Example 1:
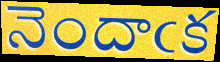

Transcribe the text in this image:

నెందాఁక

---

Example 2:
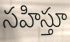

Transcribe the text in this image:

సహిస్తూ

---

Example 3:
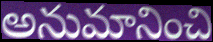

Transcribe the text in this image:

అనుమానించి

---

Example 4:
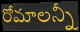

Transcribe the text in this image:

రోమాలన్నీ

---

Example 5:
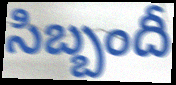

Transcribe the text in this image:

సిబ్బందీ